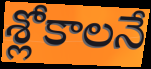
శ్లోకాలనే